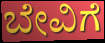
ಬೇವಿಗೆ